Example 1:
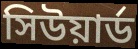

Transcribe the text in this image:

সিউয়ার্ড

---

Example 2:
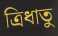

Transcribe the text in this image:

ত্রিধাতু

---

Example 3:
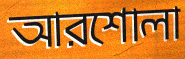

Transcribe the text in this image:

আরশোলা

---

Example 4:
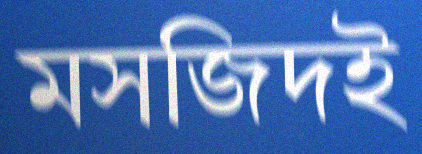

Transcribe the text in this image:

মসজিদই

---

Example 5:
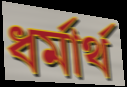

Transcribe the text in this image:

ধর্মার্থ